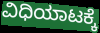
ವಿಧಿಯಾಟಕ್ಕೆ